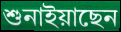
শুনাইয়াছেন